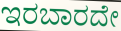
ಇರಬಾರದೇ